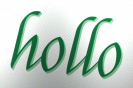
hollo